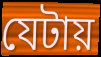
যেটায়